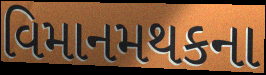
વિમાનમથકના